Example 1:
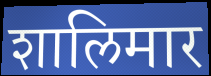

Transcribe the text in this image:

शालिमार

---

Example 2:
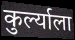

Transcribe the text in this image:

कुर्ल्याला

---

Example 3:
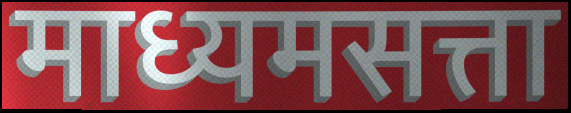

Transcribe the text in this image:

माध्यमसत्ता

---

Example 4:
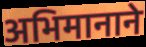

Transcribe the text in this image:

अभिमानाने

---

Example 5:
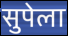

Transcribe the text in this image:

सुपेला